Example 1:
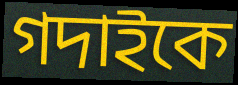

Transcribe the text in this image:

গদাইকে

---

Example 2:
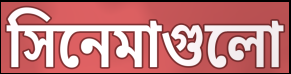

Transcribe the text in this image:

সিনেমাগুলো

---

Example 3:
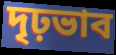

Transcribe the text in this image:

দৃঢ়ভাব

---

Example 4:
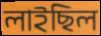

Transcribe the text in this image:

লাইছিল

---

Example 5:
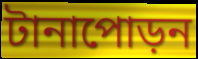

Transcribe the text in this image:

টানাপোড়ন